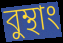
বুম্থাং